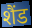
शैंड